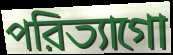
পরিত্যাগো